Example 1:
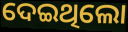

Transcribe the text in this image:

ଦେଇଥିଲୋ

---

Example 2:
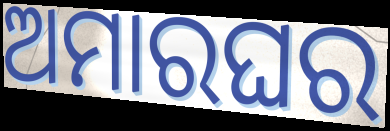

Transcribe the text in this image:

ଅମାରଘର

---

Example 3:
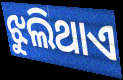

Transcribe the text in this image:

ଝୁଲିଥାଏ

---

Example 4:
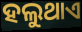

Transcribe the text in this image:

ହଲୁଥାଏ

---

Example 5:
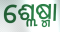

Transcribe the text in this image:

ଶ୍ଲେଷ୍ମା